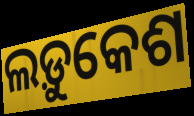
ଲଡ଼ୁକେଶ